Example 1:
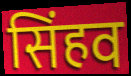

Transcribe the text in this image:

सिंहव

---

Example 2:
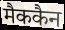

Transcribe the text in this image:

मैककैन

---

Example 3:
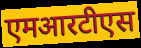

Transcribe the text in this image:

एमआरटीएस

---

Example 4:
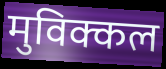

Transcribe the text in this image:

मुविक्कल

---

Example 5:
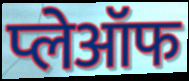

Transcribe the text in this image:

प्‍लेऑफ